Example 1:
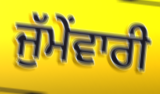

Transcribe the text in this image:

ਜੁੱਮੇਂਵਾਰੀ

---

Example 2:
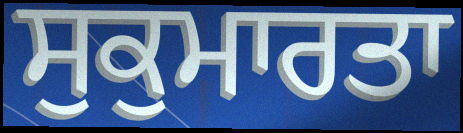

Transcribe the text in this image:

ਸੁਕੁਮਾਰਤਾ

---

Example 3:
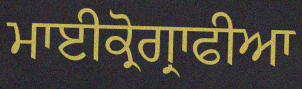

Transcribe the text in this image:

ਮਾਈਕ੍ਰੋਗ੍ਰਾਫੀਆ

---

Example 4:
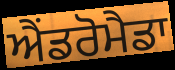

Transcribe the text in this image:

ਐਂਡਰੋਮੈਡਾ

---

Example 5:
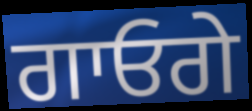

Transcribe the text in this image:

ਗਾਓਗੇ